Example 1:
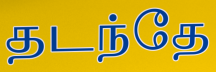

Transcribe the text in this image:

தடந்தே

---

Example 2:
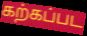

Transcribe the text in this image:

கற்கப்பட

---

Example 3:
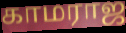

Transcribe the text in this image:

காமராஜ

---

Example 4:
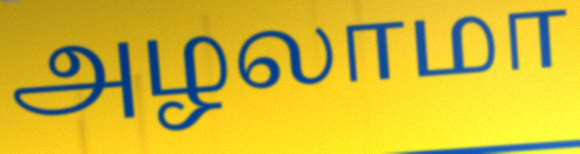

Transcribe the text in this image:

அழலாமா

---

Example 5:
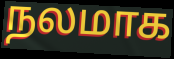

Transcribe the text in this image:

நலமாக